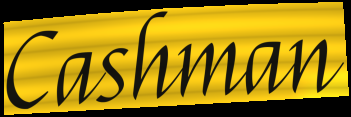
Cashman